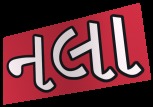
નલા